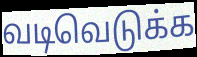
வடிவெடுக்க